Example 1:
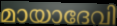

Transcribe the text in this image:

മായാദേവി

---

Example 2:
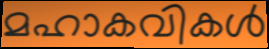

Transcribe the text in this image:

മഹാകവികൾ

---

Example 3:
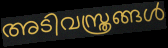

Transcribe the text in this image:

അടിവസ്ത്രങ്ങൾ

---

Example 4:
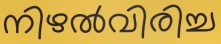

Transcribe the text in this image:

നിഴൽവിരിച്ച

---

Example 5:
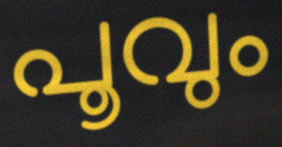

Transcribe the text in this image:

പൂവും